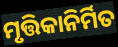
ମୃତ୍ତିକାନିର୍ମିତ